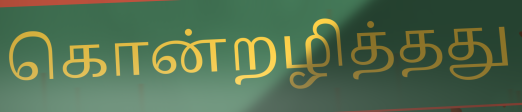
கொன்றழித்தது